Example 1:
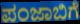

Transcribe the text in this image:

ಪಂಜಾಬಿಗೆ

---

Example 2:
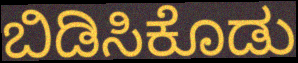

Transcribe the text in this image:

ಬಿಡಿಸಿಕೊಡು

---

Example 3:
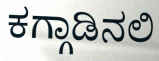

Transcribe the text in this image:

ಕಗ್ಗಾಡಿನಲಿ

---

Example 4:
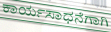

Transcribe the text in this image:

ಕಾರ್ಯಸಾಧನೆಗಾಗಿ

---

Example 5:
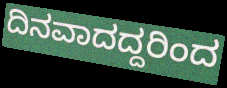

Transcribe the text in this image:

ದಿನವಾದದ್ದರಿಂದ